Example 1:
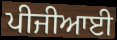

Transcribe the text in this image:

ਪੀਜੀਆਈ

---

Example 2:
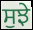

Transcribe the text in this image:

ਸੁਝੇ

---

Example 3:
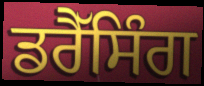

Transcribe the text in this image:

ਡਰੈੱਸਿੰਗ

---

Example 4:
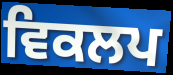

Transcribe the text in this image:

ਵਿਕਲਪ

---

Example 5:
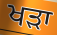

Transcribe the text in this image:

ਖੜਾ